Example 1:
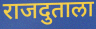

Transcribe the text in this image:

राजदुताला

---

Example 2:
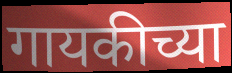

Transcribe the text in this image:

गायकीच्या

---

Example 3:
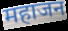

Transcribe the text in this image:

महाजन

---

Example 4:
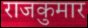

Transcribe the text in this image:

राजकुमार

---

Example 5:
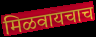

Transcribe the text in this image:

मिळवायचाच